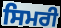
ਸਿਮਰੀ